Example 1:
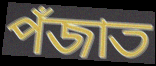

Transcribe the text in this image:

পঁজাত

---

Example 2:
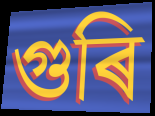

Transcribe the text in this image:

গুৰি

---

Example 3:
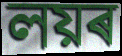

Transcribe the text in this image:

লয়ৰ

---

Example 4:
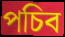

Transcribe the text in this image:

পচিব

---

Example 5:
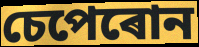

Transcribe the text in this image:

চেপেৰোন